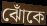
ঝোঁকে